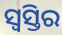
ସ୍ଵସ୍ତିର